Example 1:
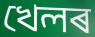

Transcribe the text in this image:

খেলৰ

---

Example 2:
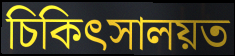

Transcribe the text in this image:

চিকিৎসালয়ত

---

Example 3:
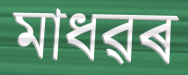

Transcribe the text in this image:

মাধৱৰ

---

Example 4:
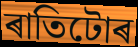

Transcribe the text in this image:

ৰাতিটোৰ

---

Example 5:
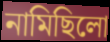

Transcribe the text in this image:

নামিছিলো